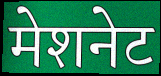
मेशनेट